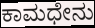
ಕಾಮಧೇನು